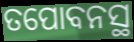
ତପୋବନସ୍ଥ